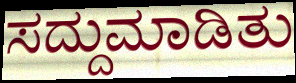
ಸದ್ದುಮಾಡಿತು